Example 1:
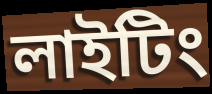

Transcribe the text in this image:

লাইটিং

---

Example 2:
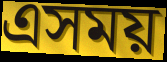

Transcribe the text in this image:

এসময়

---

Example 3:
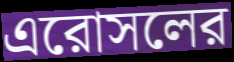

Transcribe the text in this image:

এরোসলের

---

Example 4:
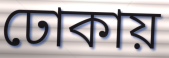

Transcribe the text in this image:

ঢোকায়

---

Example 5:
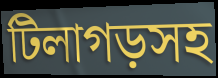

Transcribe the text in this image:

টিলাগড়সহ